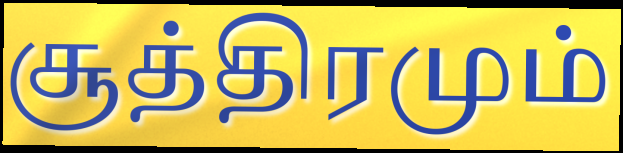
சூத்திரமும்